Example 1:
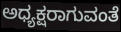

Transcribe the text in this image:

ಅಧ್ಯಕ್ಷರಾಗುವಂತೆ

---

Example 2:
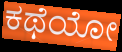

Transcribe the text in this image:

ಕಥೆಯೋ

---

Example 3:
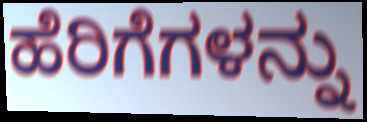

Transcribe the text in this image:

ಹೆರಿಗೆಗಳನ್ನು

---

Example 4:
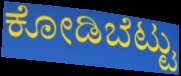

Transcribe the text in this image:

ಕೋಡಿಬೆಟ್ಟು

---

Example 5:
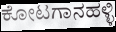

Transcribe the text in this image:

ಕೋಟಗಾನಹಳ್ಳಿ